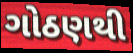
ગોઠણથી